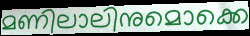
മണിലാലിനുമൊക്കെ